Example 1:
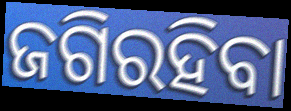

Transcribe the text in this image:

ଜଗିରହିବା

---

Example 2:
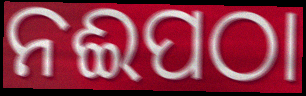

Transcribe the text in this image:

ନଈପଠା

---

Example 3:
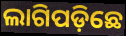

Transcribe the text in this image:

ଲାଗିପଡ଼ିଛେ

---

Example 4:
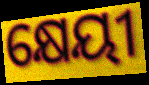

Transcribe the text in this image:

କ୍ଷେୟୀ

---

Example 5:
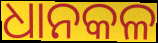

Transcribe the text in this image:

ଧାନକଳ